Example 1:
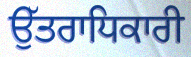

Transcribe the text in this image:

ਉੱਤਰਾਧਿਕਾਰੀ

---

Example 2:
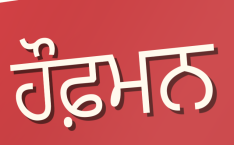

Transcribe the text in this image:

ਹੌਫ਼ਮਨ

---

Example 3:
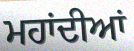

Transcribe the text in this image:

ਮਹਾਂਦੀਆਂ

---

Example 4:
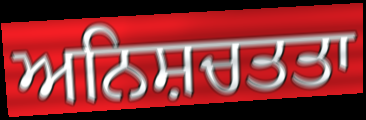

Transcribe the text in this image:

ਅਨਿਸ਼ਚਤਤਾ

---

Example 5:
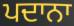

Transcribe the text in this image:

ਪਦਾਨਾ